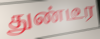
துண்டீர